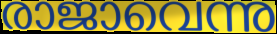
രാജാവെന്നു